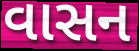
વાસન